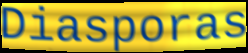
Diasporas